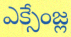
ఎక్సేంజ్ల